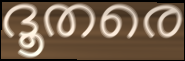
ദൂതരെ